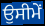
ਉਸੀਮੇਂ